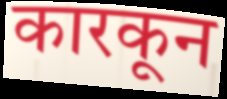
कारकून